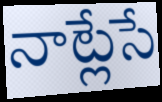
నాట్లేసే